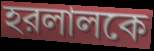
হরলালকে